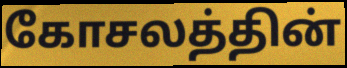
கோசலத்தின்